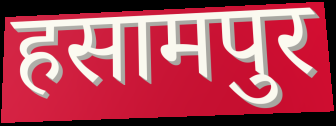
हसामपुर